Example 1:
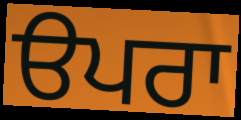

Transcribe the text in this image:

ੳਪਰਾ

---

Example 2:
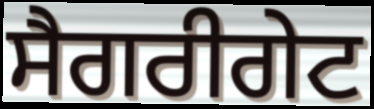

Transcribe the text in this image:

ਸੈਗਰੀਗੇਟ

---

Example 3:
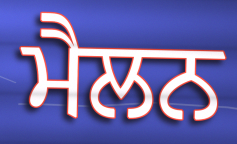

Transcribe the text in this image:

ਮੈਲਨ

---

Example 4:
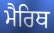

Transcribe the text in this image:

ਮੈਰਿਥ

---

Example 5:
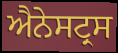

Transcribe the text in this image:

ਐਨੇਸਟ੍ਰਸ